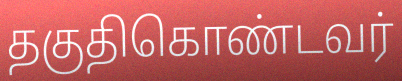
தகுதிகொண்டவர்